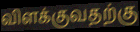
விளக்குவதற்கு